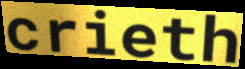
crieth